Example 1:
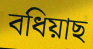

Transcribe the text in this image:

বধিয়াছ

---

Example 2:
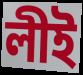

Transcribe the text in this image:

লীই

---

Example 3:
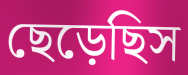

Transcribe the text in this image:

ছেড়েছিস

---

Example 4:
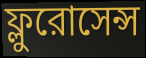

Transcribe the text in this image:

ফ্লুরোসেন্স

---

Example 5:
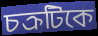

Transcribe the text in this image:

চক্রটিকে